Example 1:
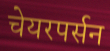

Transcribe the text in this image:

चेयरपर्सन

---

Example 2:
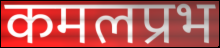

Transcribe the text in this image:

कमलप्रभ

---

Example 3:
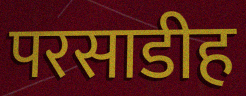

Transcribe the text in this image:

परसाडीह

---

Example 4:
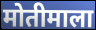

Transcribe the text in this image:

मोतीमाला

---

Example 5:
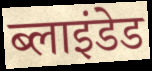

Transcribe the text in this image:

ब्लाइंडेड